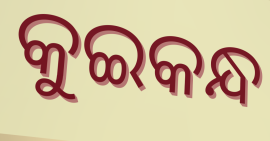
କୁଇକନ୍ଧ